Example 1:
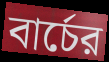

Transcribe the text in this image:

বার্চের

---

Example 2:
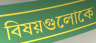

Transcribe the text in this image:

বিষয়গুলোকে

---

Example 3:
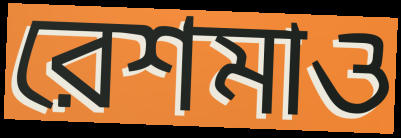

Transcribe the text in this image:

রেশমাও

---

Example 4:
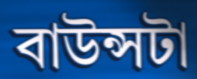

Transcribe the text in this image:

বাউন্সটা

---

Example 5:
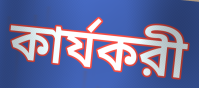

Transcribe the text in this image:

কার্যকরী